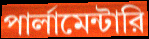
পার্লামেন্টারি